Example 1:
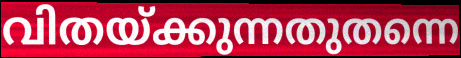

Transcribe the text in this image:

വിതയ്ക്കുന്നതുതന്നെ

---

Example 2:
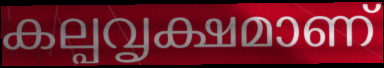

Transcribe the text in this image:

കല്പവൃക്ഷമാണ്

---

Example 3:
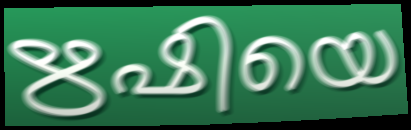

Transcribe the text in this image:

ഋഷിയെ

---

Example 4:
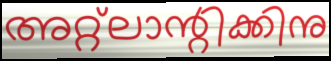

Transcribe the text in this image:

അറ്റ്ലാന്റിക്കിനു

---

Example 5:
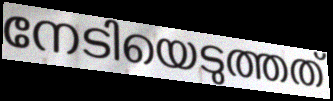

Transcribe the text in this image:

നേടിയെടുത്തത്